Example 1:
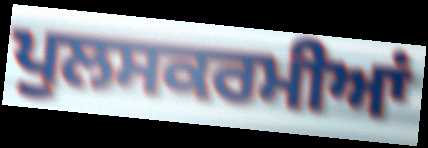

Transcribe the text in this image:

ਪੁਲਸਕਰਮੀਆਂ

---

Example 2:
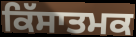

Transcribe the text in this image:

ਕਿੱਸਾਤਮਕ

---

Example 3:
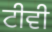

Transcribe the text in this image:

ਟੀਵੀ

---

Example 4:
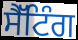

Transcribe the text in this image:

ਸੈੱਟਿੰਗ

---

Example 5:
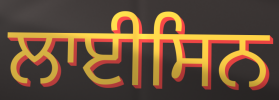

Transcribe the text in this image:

ਲਾਈਸਿਨ